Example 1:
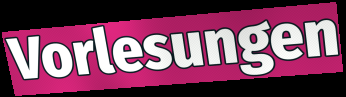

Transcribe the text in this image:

Vorlesungen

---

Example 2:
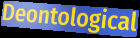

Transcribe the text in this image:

Deontological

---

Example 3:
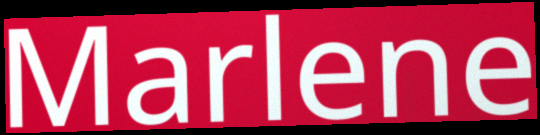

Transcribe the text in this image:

Marlene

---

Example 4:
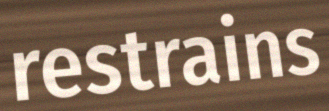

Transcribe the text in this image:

restrains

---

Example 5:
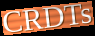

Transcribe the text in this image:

CRDTs